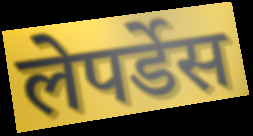
लेपर्डेस